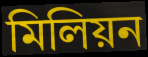
মিলিয়ন